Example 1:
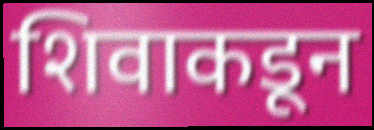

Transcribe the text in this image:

शिवाकडून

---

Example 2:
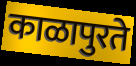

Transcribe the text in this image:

काळापुरते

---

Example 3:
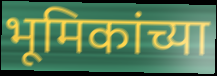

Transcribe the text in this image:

भूमिकांच्या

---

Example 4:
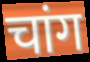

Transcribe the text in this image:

चांग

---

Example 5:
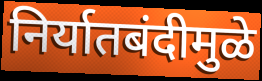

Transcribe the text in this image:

निर्यातबंदीमुळे